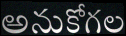
అనుకోగల